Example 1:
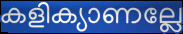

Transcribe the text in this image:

കളിക്യാണല്ലേ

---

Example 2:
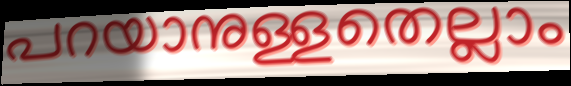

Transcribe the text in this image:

പറയാനുള്ളതെല്ലാം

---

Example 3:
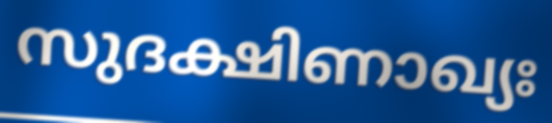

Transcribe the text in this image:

സുദക്ഷിണാഖ്യഃ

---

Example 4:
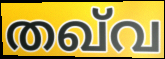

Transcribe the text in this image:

തഖ്‌വ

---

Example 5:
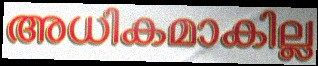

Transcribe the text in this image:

അധികമാകില്ല